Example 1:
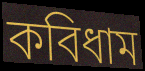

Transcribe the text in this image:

কবিধাম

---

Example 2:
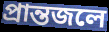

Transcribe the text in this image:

প্রান্তজলে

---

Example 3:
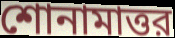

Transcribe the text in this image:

শোনামাত্তর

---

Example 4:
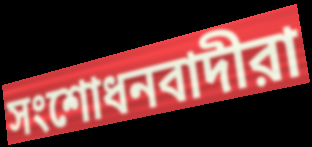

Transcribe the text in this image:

সংশোধনবাদীরা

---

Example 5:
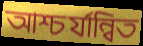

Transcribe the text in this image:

আশ্চর্যান্বিত